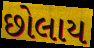
છોલાય